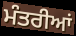
ਮੰਤਰੀਆਂ